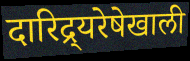
दारिद्र्यरेषेखाली